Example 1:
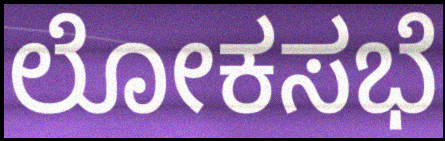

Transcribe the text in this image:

ಲೋಕಸಭೆ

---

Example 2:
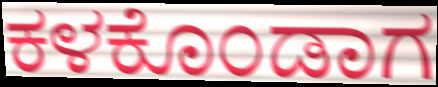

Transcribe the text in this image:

ಕಳಕೊಂಡಾಗ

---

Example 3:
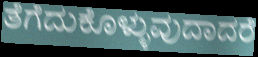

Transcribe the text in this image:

ತೆಗೆದುಕೊಳ್ಳುವುದಾದರೆ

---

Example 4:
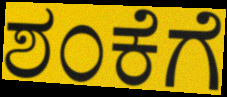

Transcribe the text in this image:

ಶಂಕೆಗೆ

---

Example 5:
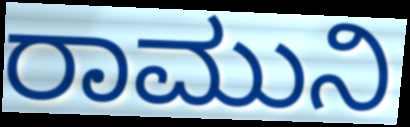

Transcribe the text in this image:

ರಾಮುನಿ